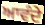
ਆਵੰਦੇ